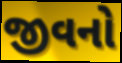
જીવનો